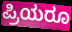
ಪ್ರಿಯರೂ